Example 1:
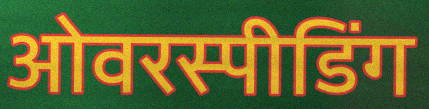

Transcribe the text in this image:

ओवरस्पीडिंग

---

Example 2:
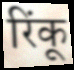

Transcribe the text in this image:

रिंकू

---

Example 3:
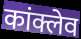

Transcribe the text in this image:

कांक्लेव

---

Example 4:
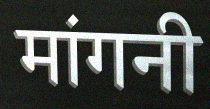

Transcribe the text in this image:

मांगनी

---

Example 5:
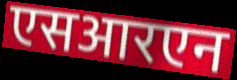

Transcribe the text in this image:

एसआरएन